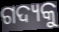
ଗଦ୍ୟକୁ